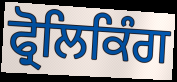
ਫ੍ਰੋਲਿਕਿੰਗ